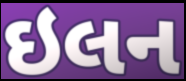
ઇલન